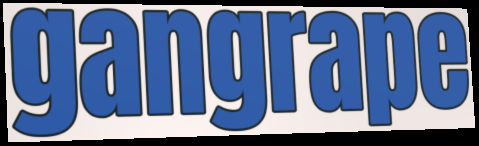
gangrape